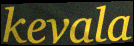
kevala